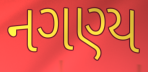
નગણ્ય